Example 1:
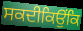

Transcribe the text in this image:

ਸਕਦੀਕਿਉਂਕਿ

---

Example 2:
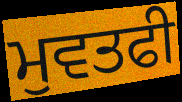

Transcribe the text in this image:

ਮੁਵਤਫੀ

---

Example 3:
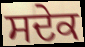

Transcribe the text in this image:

ਸਦੇਕ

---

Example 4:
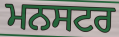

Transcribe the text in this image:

ਮਨਸਟਰ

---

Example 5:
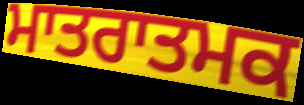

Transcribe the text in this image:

ਮਾਤਰਾਤਮਕ